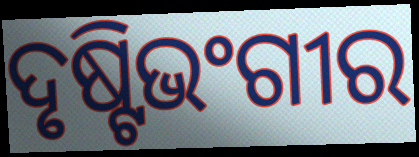
ଦୃଷ୍ଟିଭଂଗୀର